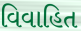
વિવાહિત